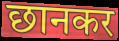
छानकर